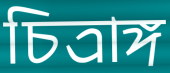
চিত্রাঙ্গ